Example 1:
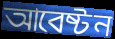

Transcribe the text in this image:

আবেষ্টন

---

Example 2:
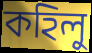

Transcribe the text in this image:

কহিলু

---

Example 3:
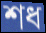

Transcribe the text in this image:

শধ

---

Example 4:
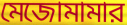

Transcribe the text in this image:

মেজোমামার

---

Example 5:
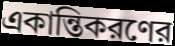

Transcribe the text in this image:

একান্তিকরণের